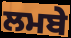
ਲਮਬੇ